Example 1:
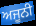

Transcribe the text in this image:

ਅਜੂਨੀ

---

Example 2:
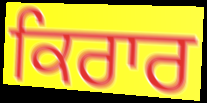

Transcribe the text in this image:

ਕਿਰਾਰ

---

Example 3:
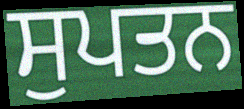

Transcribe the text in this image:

ਸੁਪਤਨ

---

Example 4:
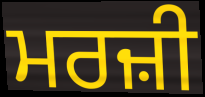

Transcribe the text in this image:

ਮਰਜ਼ੀ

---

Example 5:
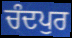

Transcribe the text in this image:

ਚੰਦਪੁਰ